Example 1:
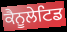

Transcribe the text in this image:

ਕੈਨੂਲੇਟਿਡ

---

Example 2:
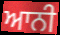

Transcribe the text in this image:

ਆਨੀ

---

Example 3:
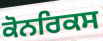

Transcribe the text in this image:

ਕੋਨਰਿਕਸ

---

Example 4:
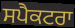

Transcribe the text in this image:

ਸਪੈਕਟਰਾ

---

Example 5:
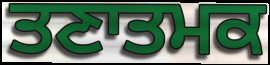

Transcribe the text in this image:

ਤਣਾਤਮਕ